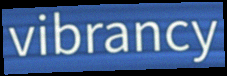
vibrancy